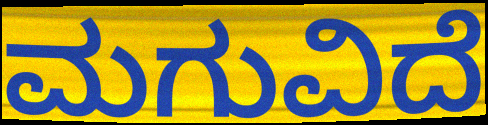
ಮಗುವಿದೆ